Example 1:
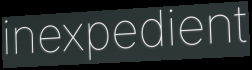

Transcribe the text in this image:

inexpedient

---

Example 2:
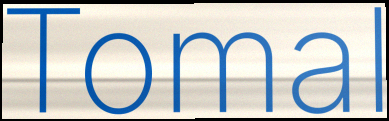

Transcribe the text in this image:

Tomal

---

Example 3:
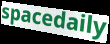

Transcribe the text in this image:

spacedaily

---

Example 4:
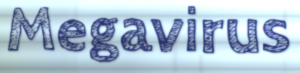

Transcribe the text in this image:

Megavirus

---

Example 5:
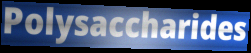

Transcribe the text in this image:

Polysaccharides